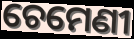
ଚେମେଣୀ